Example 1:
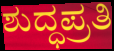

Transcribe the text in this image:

ಶುದ್ಧಪ್ರತಿ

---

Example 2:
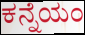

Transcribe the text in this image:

ಕನ್ನೆಯಂ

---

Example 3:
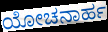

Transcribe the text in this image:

ಯೋಚನಾರ್ಹ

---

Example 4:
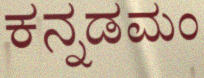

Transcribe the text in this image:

ಕನ್ನಡಮಂ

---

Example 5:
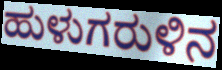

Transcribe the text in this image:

ಹುಳುಗರುಳಿನ